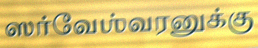
ஸர்வேஶ்வரனுக்கு